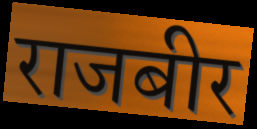
राजबीर